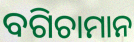
ବଗିଚାମାନ